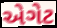
એગેટ